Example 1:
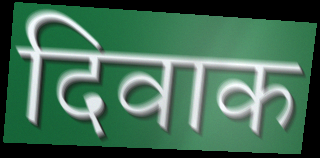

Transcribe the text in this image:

दिवाक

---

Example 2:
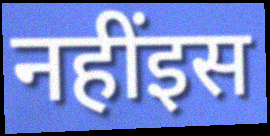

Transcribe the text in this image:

नहींइस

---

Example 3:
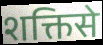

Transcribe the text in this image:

शक्तिसे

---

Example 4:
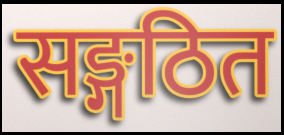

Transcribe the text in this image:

सङ्गठित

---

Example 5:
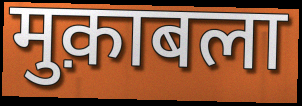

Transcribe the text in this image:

मुक़ाबला